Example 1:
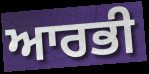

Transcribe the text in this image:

ਆਰਭੀ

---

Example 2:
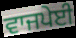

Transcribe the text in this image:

ਵਾਜਪੇਈ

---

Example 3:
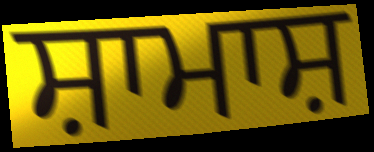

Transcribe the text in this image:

ਸ਼ਾਮਾਸ਼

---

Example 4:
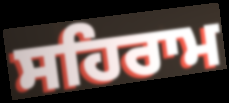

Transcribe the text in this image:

ਸਹਿਰਾਮ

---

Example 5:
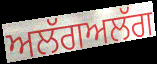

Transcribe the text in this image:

ਅਲੱਗਅਲੱਗ